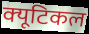
क्यूटिकल